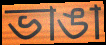
ভাঙা